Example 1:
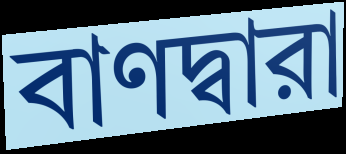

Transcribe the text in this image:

বাণদ্বারা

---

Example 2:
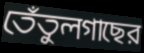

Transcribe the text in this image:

তেঁতুলগাছের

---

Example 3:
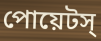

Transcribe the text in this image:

পোয়েটস্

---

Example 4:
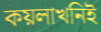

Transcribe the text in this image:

কয়লাখনিই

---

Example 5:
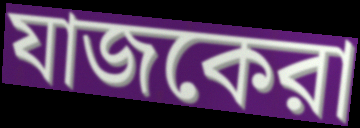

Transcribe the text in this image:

যাজকেরা